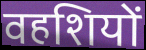
वहशियों